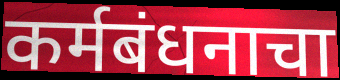
कर्मबंधनाचा